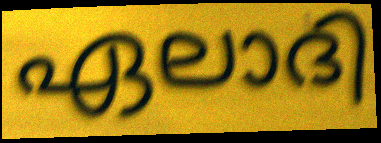
ഏലാദി